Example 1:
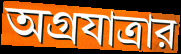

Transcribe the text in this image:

অগ্রযাত্রার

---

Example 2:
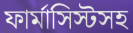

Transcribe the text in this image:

ফার্মাসিস্টসহ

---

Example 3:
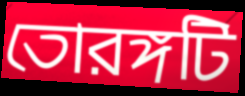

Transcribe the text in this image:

তোরঙ্গটি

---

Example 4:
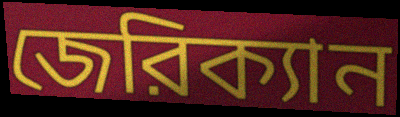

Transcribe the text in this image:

জেরিক্যান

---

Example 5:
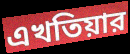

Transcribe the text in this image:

এখতিয়ার